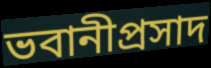
ভবানীপ্রসাদ